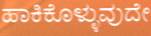
ಹಾಕಿಕೊಳ್ಳುವುದೇ